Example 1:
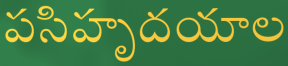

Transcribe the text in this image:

పసిహృదయాల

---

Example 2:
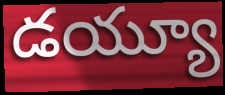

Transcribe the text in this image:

డయ్యూ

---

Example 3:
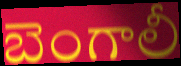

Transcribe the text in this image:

బెంగాలీ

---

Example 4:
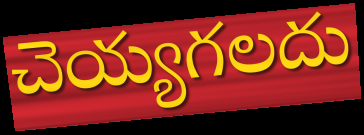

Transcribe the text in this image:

చెయ్యగలదు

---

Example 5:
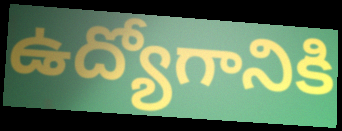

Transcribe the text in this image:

ఉద్యోగానికి